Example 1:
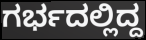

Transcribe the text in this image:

ಗರ್ಭದಲ್ಲಿದ್ದ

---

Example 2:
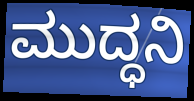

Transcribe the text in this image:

ಮುದ್ಧನಿ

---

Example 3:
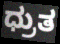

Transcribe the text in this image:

ಧ್ರುತ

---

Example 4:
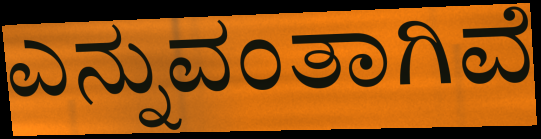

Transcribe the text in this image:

ಎನ್ನುವಂತಾಗಿವೆ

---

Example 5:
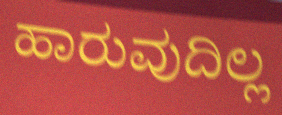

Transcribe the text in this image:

ಹಾರುವುದಿಲ್ಲ